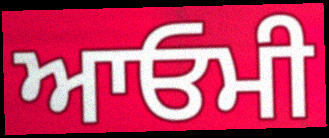
ਆਓਮੀ